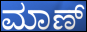
ಮಾಣ್